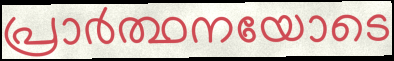
പ്രാർത്ഥനയോടെ